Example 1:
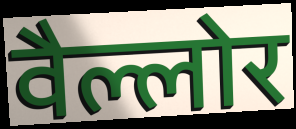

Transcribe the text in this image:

वैल्लोर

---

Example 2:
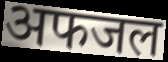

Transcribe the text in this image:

अफजल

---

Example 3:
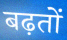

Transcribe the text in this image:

बढ़तों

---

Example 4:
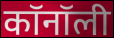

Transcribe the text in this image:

कॉनॉली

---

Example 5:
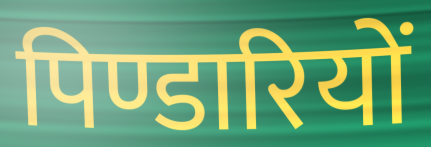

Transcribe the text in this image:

पिण्डारियों